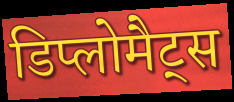
डिप्लोमैट्स